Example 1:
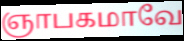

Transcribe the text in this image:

ஞாபகமாவே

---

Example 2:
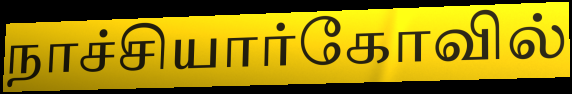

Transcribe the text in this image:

நாச்சியார்கோவில்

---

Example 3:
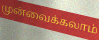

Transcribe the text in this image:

முன்வைக்கலாம்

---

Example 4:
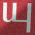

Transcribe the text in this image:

யு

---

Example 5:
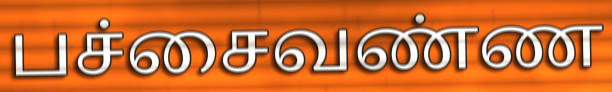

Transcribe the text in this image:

பச்சைவண்ண